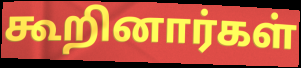
கூறினார்கள்